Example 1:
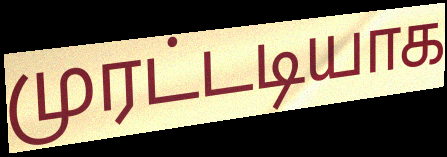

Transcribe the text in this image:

முரட்டடியாக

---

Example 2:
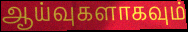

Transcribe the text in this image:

ஆய்வுகளாகவும்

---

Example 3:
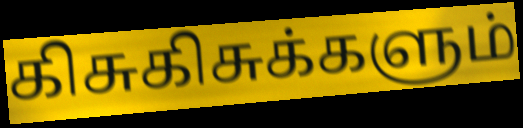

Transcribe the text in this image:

கிசுகிசுக்களும்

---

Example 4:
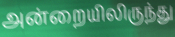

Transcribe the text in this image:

அன்றையிலிருந்து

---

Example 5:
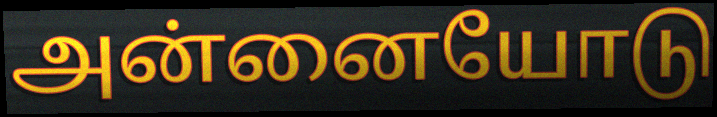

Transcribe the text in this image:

அன்னையோடு